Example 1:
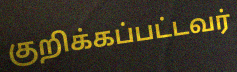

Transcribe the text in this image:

குறிக்கப்பட்டவர்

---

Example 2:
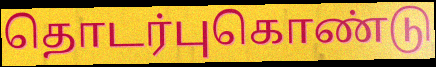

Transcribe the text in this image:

தொடர்புகொண்டு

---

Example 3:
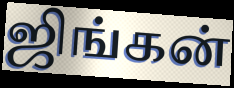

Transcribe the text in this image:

ஜிங்கன்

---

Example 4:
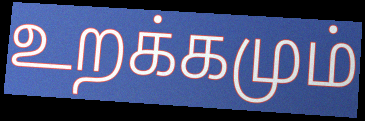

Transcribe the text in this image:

உறக்கமும்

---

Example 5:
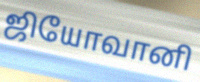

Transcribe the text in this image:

ஜியோவானி